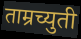
ताम्रच्युती